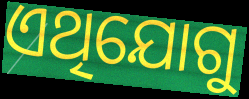
ଏଥିଯୋଗୁ